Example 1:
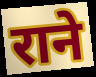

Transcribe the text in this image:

राने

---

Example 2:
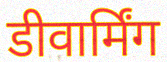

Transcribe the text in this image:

डीवार्मिंग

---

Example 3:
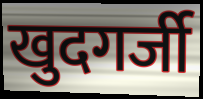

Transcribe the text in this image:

खुदगर्जी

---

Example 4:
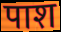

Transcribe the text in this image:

पाश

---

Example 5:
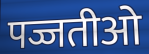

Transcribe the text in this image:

पज्जतीओ